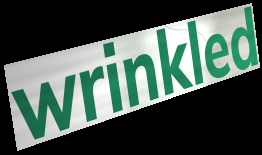
wrinkled